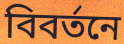
বিবর্তনে